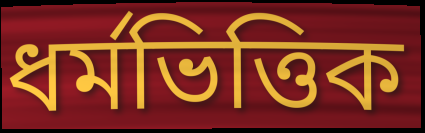
ধৰ্মভিত্তিক